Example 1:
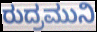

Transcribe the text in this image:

ರುದ್ರಮುನಿ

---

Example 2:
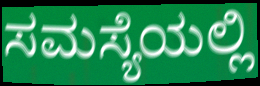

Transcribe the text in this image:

ಸಮಸ್ಯೆಯಲ್ಲಿ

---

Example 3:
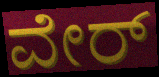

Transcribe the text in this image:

ವೇರ್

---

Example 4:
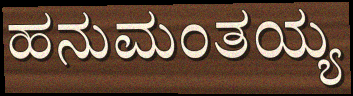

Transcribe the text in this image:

ಹನುಮಂತಯ್ಯ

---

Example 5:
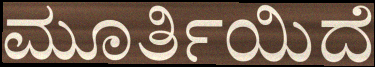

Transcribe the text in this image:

ಮೂರ್ತಿಯಿದೆ